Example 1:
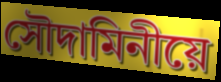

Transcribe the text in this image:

সৌদামিনীয়ে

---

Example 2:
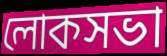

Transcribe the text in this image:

লোকসভা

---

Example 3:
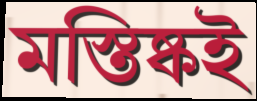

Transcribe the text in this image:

মস্তিষ্কই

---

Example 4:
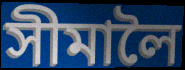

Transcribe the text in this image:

সীমালৈ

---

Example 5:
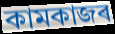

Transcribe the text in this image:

কামকাজৰ